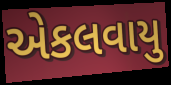
એકલવાયુ